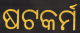
ଷଟକର୍ମ